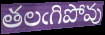
తలఁగిపోవు